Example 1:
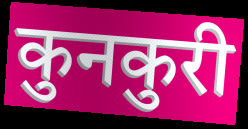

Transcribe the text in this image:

कुनकुरी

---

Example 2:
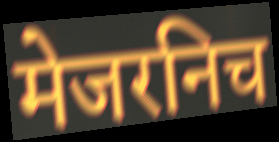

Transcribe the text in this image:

मेजरनिच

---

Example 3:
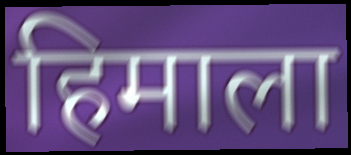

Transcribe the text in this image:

हिमाला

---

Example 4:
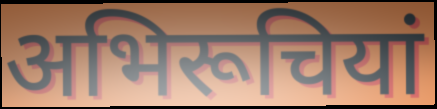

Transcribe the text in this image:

अभिरूचियां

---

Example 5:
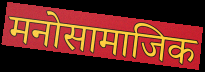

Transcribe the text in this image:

मनोसामाजिक